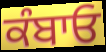
ਕੰਬਾਓ